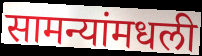
सामन्यांमधली